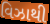
વિઝાથી